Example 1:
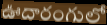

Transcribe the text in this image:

ఊదారంగులో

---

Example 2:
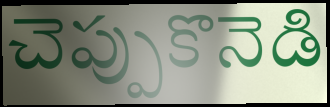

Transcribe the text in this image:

చెప్పుకొనెడి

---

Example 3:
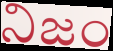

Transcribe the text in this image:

నిజం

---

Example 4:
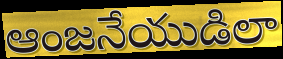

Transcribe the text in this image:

ఆంజనేయుడిలా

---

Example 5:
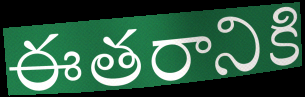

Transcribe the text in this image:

ఈతరానికి